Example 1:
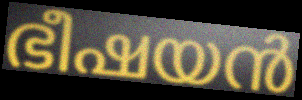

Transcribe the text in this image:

ഭീഷയൻ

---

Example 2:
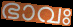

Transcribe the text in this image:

ഭാവഃ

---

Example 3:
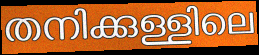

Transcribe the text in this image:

തനിക്കുള്ളിലെ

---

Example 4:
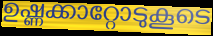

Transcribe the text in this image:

ഉഷ്ണക്കാറ്റോടുകൂടെ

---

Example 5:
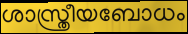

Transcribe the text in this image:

ശാസ്ത്രീയബോധം